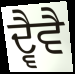
ਦ੍ਵੈਵੈ